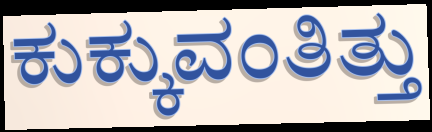
ಕುಕ್ಕುವಂತಿತ್ತು